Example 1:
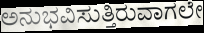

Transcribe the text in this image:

ಅನುಭವಿಸುತ್ತಿರುವಾಗಲೇ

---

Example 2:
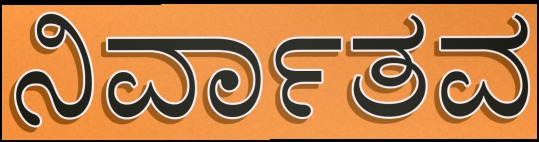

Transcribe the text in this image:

ನಿರ್ವಾತವ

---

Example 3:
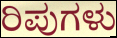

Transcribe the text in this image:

ರಿಪುಗಳು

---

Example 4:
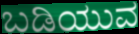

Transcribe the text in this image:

ಬಡಿಯುವ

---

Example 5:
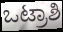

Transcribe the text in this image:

ಒಟ್ರಾಶಿ